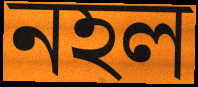
নহল